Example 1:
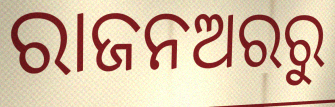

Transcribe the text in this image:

ରାଜନଅରରୁ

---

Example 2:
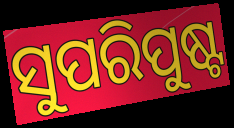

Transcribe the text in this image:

ସୁପରିପୁଷ୍ଟ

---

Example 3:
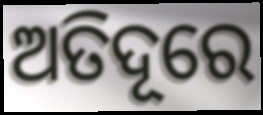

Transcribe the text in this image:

ଅତିଦୂରେ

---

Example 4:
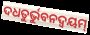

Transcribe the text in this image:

ଦଧତୁର୍ଭୁବନଦ୍ଵୟମ୍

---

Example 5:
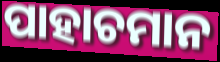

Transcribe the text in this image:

ପାହାଚମାନ